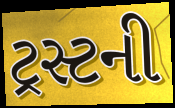
ટ્રસ્ટની